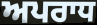
ਅਪਰਾਧ